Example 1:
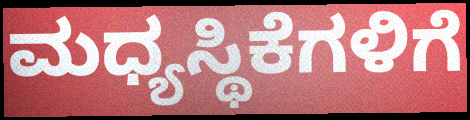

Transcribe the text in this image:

ಮಧ್ಯಸ್ಥಿಕೆಗಳಿಗೆ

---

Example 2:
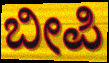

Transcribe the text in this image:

ಬೀಪಿ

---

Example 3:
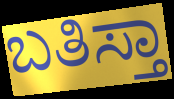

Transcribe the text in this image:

ಬತಿಸ್ತಾ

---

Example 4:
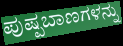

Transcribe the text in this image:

ಪುಷ್ಪಬಾಣಗಳನ್ನು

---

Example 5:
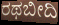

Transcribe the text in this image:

ರಥಬೀದಿ